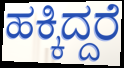
ಹಕ್ಕಿದ್ದರೆ